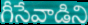
గీసేవాడిని